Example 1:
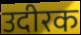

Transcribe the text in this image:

उदीरक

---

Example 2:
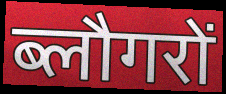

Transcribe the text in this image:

ब्लौगरों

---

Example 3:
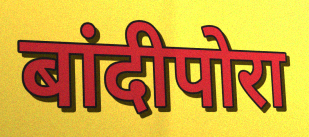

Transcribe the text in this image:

बांदीपोरा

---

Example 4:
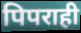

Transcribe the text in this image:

पिपराही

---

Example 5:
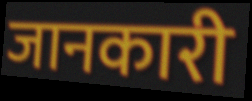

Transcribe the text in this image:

जानकारी